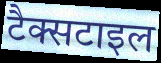
टैक्सटाइल